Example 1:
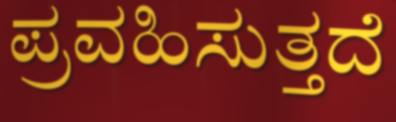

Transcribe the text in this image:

ಪ್ರವಹಿಸುತ್ತದೆ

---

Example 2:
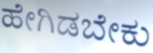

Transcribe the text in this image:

ಹೇಗಿಡಬೇಕು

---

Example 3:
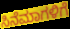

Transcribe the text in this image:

ಸಿನೆಮಾಗಳಿಗೆ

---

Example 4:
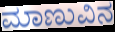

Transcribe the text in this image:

ಮಾಣುವಿನ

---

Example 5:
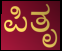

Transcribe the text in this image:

ಪಿತೃ